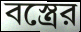
বস্ত্রের